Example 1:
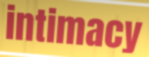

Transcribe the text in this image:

intimacy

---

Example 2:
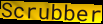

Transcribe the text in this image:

Scrubber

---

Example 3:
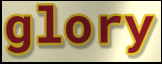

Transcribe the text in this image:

glory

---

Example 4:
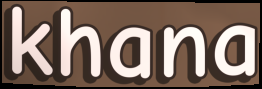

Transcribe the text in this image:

khana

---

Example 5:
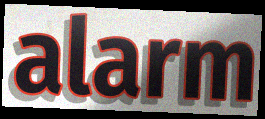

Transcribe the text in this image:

alarm